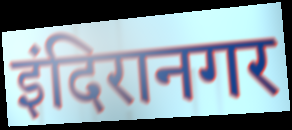
इंदिरानगर